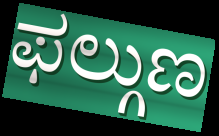
ಫಲ್ಗುಣ